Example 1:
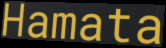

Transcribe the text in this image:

Hamata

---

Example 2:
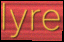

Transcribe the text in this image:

Iyre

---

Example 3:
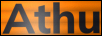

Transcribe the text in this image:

Athu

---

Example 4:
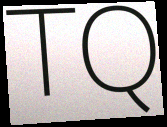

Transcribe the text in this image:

TQ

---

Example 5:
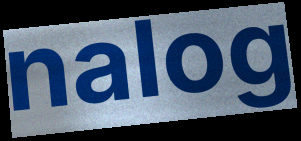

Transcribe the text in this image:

nalog